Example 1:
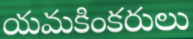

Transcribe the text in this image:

యమకింకరులు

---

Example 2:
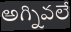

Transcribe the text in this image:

అగ్నివలే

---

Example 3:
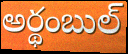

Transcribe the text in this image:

అర్థంబుల్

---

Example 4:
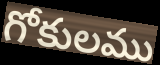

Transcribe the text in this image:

గోకులము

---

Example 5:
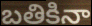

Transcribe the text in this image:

బతికినా